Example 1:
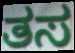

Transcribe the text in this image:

ತಸ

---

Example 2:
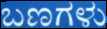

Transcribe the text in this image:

ಬಣಗಳು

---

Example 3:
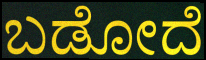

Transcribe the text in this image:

ಬಡೋದೆ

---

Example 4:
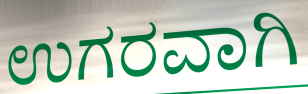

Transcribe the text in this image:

ಉಗರವಾಗಿ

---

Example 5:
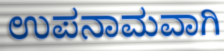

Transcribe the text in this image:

ಉಪನಾಮವಾಗಿ